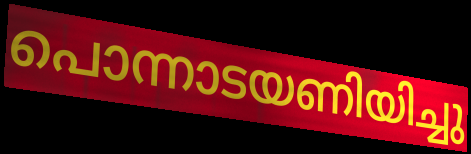
പൊന്നാടയണിയിച്ചു